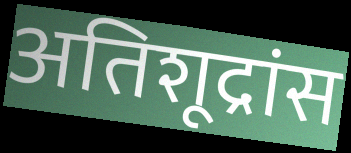
अतिशूद्रांस